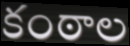
కంఠాల